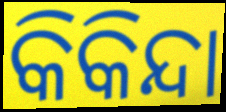
କିକିନ୍ଦା